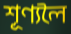
শূণ্যলৈ